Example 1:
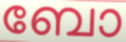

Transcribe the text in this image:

ബോ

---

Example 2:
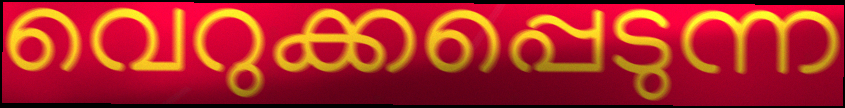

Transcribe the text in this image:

വെറുക്കപ്പെടുന്ന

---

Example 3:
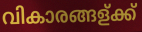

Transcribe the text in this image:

വികാരങ്ങള്ക്ക്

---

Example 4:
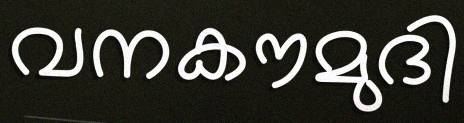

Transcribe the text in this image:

വനകൗമുദി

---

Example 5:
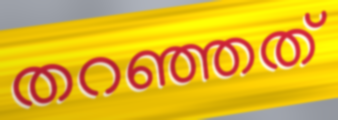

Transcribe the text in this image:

തറഞ്ഞത്